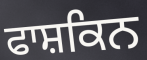
ਫਾਸ਼ਕਿਨ